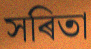
সৰিতা